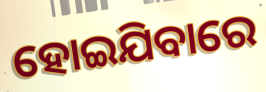
ହୋଇଯିବାରେ